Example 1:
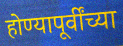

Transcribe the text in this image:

होण्यापूर्वींच्या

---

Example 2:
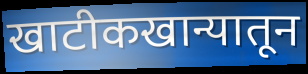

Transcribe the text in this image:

खाटीकखान्यातून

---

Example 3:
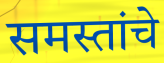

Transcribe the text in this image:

समस्तांचे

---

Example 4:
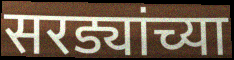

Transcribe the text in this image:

सरड्यांच्या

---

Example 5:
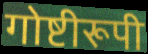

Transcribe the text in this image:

गोष्टीरूपी